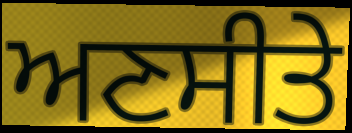
ਅਣਸੀਤੇ